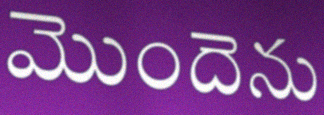
మొందెను